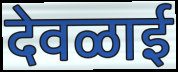
देवळाई